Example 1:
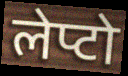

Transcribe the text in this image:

लेप्टो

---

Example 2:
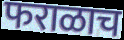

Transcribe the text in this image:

फराळाच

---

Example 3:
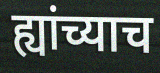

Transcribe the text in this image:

ह्यांच्याच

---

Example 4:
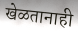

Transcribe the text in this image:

खेळतानाही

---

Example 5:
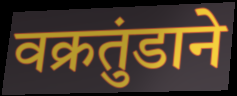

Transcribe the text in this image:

वक्रतुंडाने